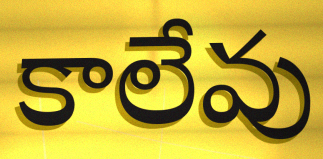
కాలేవు